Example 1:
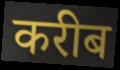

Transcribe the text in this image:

करीब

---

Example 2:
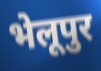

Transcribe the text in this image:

भेलूपुर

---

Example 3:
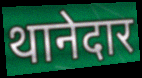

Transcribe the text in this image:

थानेदार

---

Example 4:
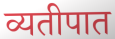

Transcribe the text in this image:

व्यतीपात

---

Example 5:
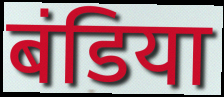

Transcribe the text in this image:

बंडिया